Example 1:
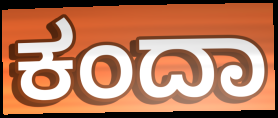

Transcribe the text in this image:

ಕಂದಾ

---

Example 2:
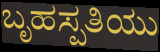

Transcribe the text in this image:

ಬೃಹಸ್ಪತಿಯು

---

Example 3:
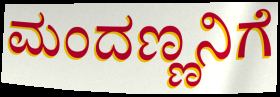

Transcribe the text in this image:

ಮಂದಣ್ಣನಿಗೆ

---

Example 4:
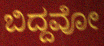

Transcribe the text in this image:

ಬಿದ್ದವೋ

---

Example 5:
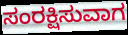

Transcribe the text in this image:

ಸಂರಕ್ಷಿಸುವಾಗ